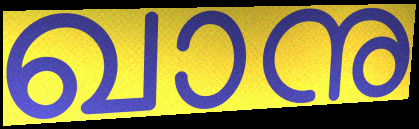
ഖാനു